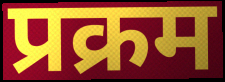
प्रक्रम